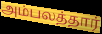
அம்பலத்தார்